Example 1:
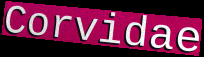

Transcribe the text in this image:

Corvidae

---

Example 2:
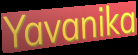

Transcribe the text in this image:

Yavanika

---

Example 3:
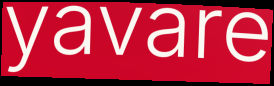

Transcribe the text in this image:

yavare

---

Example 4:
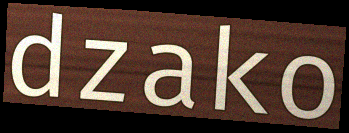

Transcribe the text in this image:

dzako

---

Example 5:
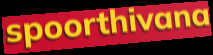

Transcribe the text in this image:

spoorthivana